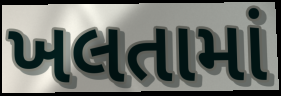
ખલતામાં